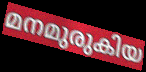
മനമുരുകിയ